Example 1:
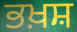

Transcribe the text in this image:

ਭਖ਼ਸ਼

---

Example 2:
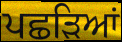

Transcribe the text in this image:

ਪਛੜਿਆਂ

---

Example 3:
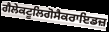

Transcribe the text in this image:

ਗੈਲੇਕਟੂਲਿਗੋਸੈਕਰਾਇਡਜ਼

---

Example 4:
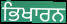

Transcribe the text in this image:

ਭਿਖਾਰਨ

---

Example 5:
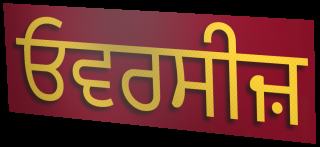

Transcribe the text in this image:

ਓਵਰਸੀਜ਼